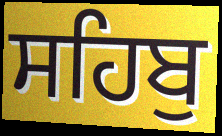
ਸਹਿਬੁ